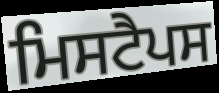
ਮਿਸਟੈਪਸ